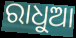
ରାଧୁଆ